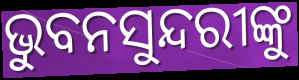
ଭୁବନସୁନ୍ଦରୀଙ୍କୁ